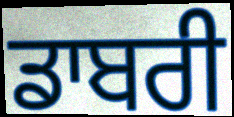
ਡਾਬਰੀ